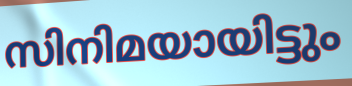
സിനിമയായിട്ടും